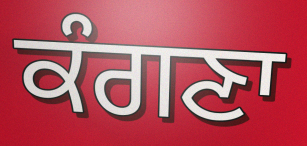
ਕੰਗਣਾ